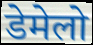
डेमेलो